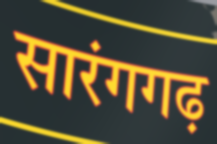
सारंगगढ़